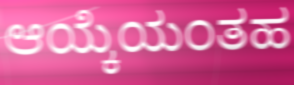
ಆಯ್ಕೆಯಂತಹ